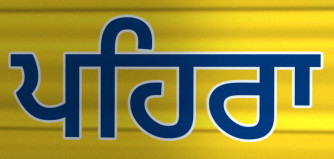
ਪਹਿਰਾ